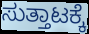
ಸುತ್ತಾಟಕ್ಕೆ